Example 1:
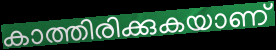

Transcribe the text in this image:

കാത്തിരിക്കുകയാണ്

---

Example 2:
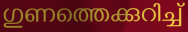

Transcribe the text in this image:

ഗുണത്തെക്കുറിച്ച്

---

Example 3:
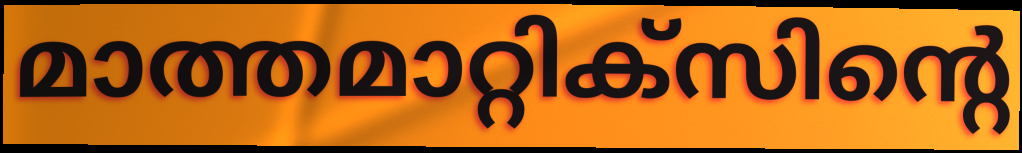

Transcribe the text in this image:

മാത്തമാറ്റിക്സിന്റെ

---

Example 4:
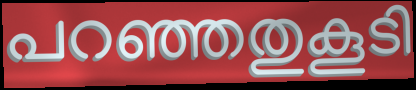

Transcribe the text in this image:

പറഞ്ഞതുകൂടി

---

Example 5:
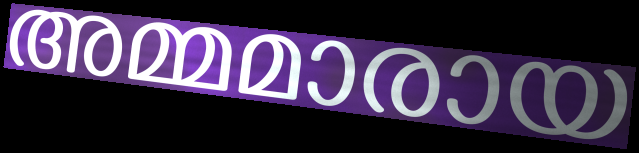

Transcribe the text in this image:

അമ്മമാരായ